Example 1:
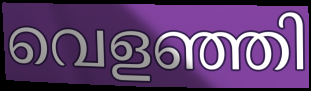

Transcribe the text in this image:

വെളഞ്ഞി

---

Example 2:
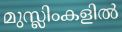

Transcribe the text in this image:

മുസ്ലിംകളിൽ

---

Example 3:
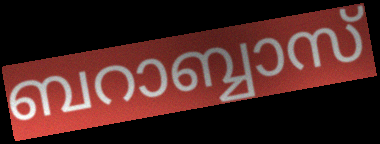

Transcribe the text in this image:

ബറാബ്ബാസ്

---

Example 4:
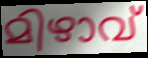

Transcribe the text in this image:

മിഴാവ്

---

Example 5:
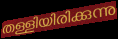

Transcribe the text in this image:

തള്ളിയിരിക്കുന്നു